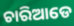
ଚାରିଆଡେ